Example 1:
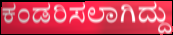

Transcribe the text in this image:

ಕಂಡರಿಸಲಾಗಿದ್ದು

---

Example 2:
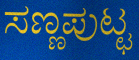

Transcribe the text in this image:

ಸಣ್ಣಪುಟ್ಟ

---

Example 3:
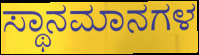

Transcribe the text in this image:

ಸ್ಥಾನಮಾನಗಳ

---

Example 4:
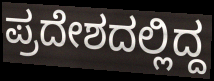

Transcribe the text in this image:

ಪ್ರದೇಶದಲ್ಲಿದ್ದ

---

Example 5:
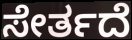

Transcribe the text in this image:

ಸೇರ್ತದೆ